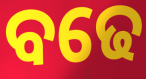
ବଢେ